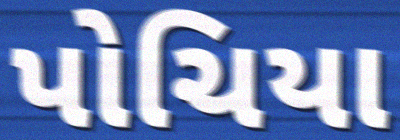
પોચિયા